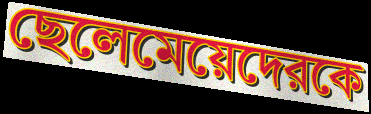
ছেলেমেয়েদেরকে